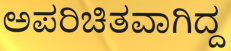
ಅಪರಿಚಿತವಾಗಿದ್ದ